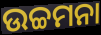
ଉଚ୍ଚମନା